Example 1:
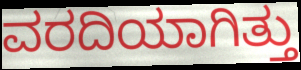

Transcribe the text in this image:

ವರದಿಯಾಗಿತ್ತು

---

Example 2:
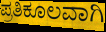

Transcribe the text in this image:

ಪ್ರತಿಕೂಲವಾಗಿ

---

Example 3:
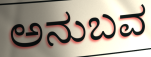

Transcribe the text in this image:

ಅನುಬವ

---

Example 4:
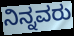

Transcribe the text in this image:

ನಿನ್ನವರು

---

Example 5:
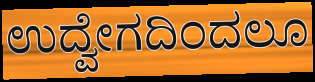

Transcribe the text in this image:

ಉದ್ವೇಗದಿಂದಲೂ